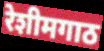
रेशीमगाठ